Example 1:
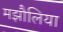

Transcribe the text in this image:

मझौलिया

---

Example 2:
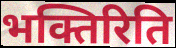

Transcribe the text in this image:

भक्तिरिति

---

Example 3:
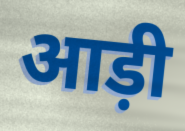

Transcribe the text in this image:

आड़ी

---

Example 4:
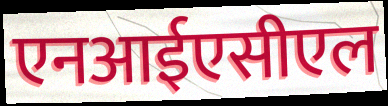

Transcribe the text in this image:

एनआईएसीएल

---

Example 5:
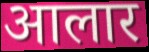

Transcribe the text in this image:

आलार